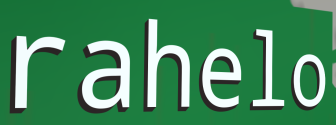
rahelo